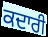
ਕਦਾਰੀ